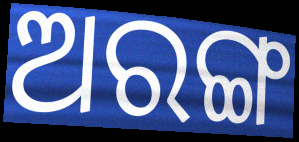
ଅରଙ୍ଗ